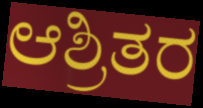
ಆಶ್ರಿತರ